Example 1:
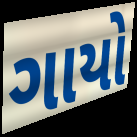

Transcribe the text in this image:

ગાયો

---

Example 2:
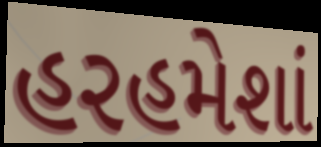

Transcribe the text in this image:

હરહમેશાં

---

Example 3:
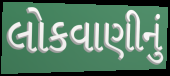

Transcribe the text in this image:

લોકવાણીનું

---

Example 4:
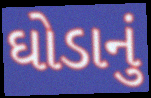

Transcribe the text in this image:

ઘોડાનું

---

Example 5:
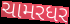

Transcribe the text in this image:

ચામરધર